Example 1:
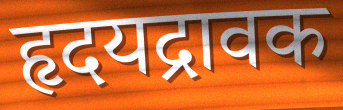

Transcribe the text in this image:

हृदयद्रावक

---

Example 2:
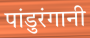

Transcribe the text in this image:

पांडुरंगानी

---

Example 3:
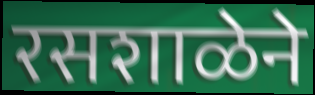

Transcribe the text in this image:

रसशाळेने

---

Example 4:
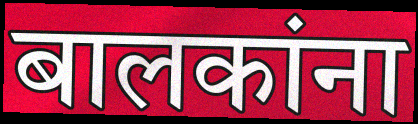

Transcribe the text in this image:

बालकांना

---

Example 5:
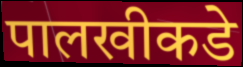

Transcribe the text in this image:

पालखीकडे